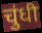
चुंधी